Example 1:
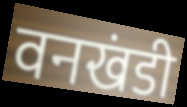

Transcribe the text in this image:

वनखंडी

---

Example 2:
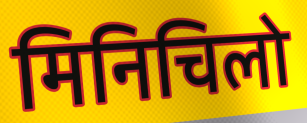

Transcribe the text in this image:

मिनिचिलो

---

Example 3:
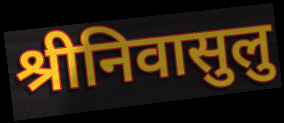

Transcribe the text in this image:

श्रीनिवासुलु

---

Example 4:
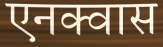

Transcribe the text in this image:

एनक्वास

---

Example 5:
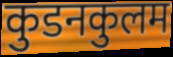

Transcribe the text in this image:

कुडनकुलम